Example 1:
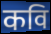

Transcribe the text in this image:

कवि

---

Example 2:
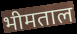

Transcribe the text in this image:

भीमताल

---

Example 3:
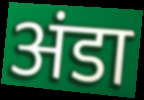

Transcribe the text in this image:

अंडा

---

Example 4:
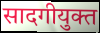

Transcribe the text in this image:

सादगीयुक्त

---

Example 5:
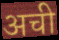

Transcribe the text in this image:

अची